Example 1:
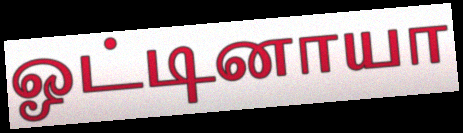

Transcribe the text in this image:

ஓட்டினாயா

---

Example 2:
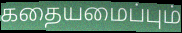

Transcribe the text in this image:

கதையமைப்பும்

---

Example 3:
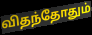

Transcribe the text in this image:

விதந்தோதும்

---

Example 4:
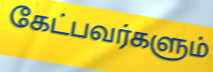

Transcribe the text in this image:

கேட்பவர்களும்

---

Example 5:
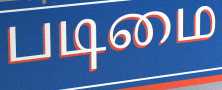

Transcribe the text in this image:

படிமை